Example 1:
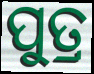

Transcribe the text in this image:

ପୁତ୍ର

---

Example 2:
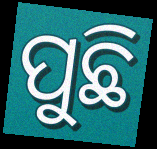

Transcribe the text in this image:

ପୁଛି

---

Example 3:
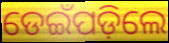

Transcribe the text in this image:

ଡେଇଁପଡ଼ିଲେ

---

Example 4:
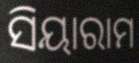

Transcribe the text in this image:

ସିୟାରାମ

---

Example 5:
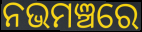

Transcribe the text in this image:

ନଭମଞ୍ଚରେ